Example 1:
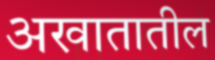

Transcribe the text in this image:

अखातातील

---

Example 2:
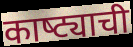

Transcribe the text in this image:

काष्ट्याची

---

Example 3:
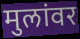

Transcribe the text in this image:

मुलांवर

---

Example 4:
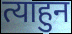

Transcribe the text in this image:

त्याहुन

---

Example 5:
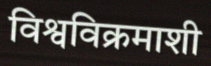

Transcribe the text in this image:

विश्वविक्रमाशी